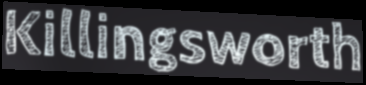
Killingsworth